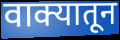
वाक्यातून